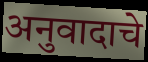
अनुवादाचे